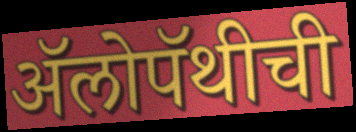
ॲलोपॅथीची